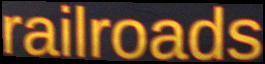
railroads